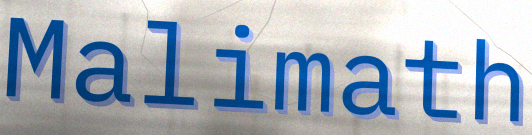
Malimath